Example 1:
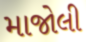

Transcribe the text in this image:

માજોલી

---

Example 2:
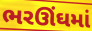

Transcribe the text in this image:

ભરઊંઘમાં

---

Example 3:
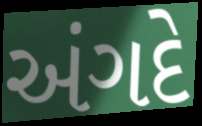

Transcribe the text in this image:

અંગદે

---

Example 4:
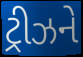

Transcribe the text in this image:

ટ્રીઝને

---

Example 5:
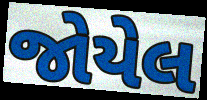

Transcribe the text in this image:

જોયેલ